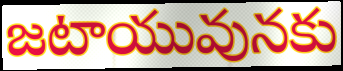
జటాయువునకు